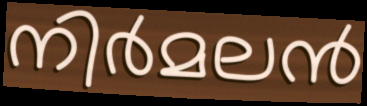
നിർമലൻ